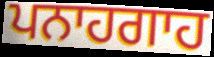
ਪਨਾਹਗਾਹ